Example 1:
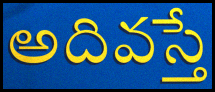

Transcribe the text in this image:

అదివస్తే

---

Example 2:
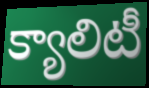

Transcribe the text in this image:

క్యాలిటీ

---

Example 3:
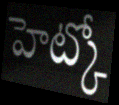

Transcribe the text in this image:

హెట్కో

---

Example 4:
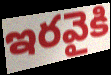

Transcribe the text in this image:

ఇరవైకి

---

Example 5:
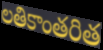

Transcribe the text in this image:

లతికాంతరిత